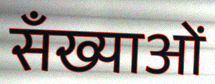
सँख्याओं